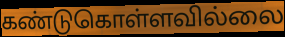
கண்டுகொள்ளவில்லை